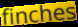
finches